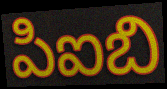
పిఐబి